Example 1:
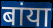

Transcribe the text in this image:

बांया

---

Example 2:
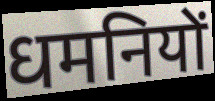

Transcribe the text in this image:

धमनियों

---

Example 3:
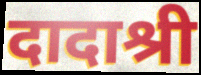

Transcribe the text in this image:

दादाश्री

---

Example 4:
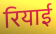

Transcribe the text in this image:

रियाई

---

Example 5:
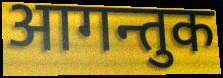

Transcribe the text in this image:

आगन्तुक